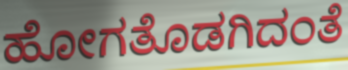
ಹೋಗತೊಡಗಿದಂತೆ